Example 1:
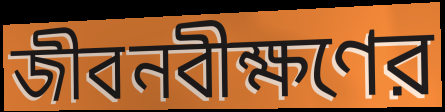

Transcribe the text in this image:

জীবনবীক্ষণের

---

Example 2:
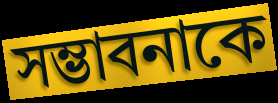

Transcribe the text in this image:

সম্ভাবনাকে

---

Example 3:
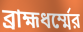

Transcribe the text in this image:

ব্রাহ্মধর্ম্মের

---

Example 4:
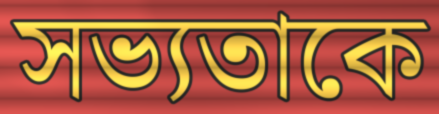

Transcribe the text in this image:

সভ্যতাকে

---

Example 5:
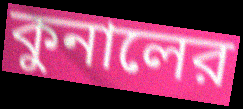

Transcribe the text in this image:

কুনালের